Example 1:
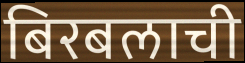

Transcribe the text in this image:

बिरबलाची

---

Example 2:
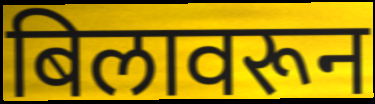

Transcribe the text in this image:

बिलावरून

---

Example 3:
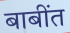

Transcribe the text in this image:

बाबींत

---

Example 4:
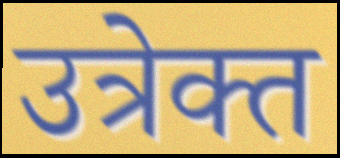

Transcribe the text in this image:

उत्रेक्त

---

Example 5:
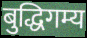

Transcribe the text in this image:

बुद्धिगम्य